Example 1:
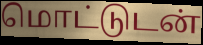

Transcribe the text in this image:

மொட்டுடன்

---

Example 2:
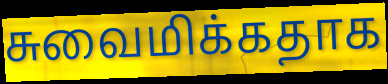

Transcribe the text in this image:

சுவைமிக்கதாக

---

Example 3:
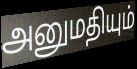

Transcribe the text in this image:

அனுமதியும்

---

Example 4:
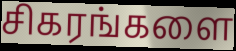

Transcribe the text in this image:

சிகரங்களை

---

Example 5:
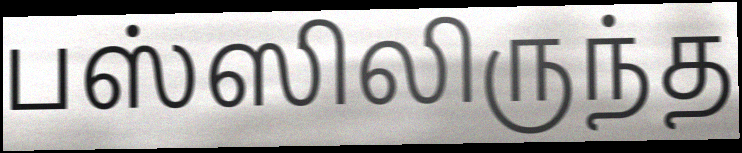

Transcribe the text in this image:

பஸ்ஸிலிருந்த